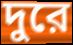
দুরে